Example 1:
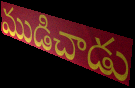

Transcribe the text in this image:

ముడిచాడు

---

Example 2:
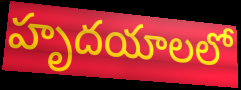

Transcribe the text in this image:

హృదయాలలో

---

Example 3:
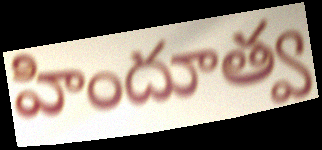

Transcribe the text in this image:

హిందూత్వ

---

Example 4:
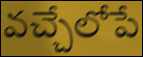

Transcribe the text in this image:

వచ్చేలోపే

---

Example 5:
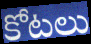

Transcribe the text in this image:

కోటలు